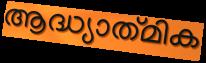
ആദ്ധ്യാത്‌മിക